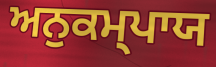
ਅਨੁਕਮ੍ਪਾਯ